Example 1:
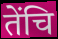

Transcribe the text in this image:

तेंचि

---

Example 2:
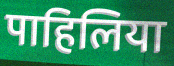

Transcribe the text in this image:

पाहिलिया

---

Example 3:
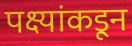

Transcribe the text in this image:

पक्ष्यांकडून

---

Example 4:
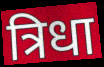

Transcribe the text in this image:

त्रिधा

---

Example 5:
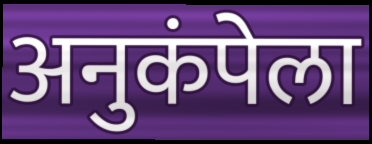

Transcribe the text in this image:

अनुकंपेला